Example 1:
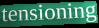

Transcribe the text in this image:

tensioning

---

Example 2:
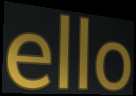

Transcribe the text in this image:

ello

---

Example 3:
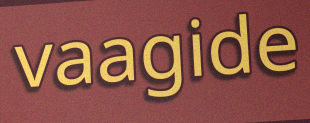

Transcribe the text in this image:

vaagide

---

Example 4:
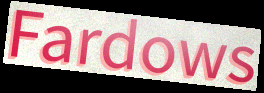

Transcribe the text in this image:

Fardows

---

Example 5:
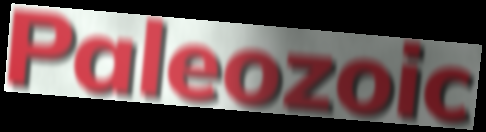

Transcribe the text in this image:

Paleozoic